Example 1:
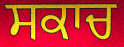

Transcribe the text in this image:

ਸਕਾਚ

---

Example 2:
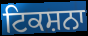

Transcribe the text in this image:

ਟਿਕਸ਼ਨਾ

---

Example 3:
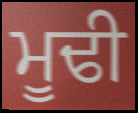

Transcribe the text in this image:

ਮੂਢੀ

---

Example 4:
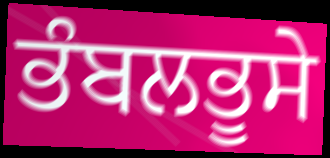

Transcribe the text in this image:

ਭੰਬਲਭੂਸੇ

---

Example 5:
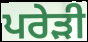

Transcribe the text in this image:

ਪਰੇੜੀ